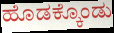
ಹೊಡಕ್ಕೊಂಡು